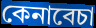
কেনাবেচা